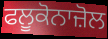
ਫਲੂਕੋਨਾਜ਼ੋਲ